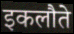
इकलौते